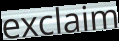
exclaim